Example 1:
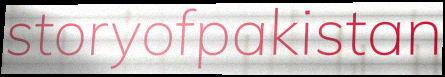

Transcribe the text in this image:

storyofpakistan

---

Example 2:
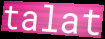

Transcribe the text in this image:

talat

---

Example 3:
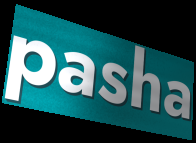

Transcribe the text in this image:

pasha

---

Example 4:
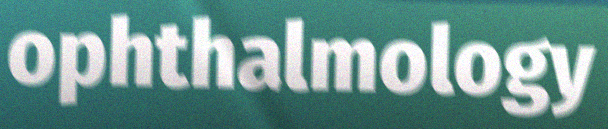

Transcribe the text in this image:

ophthalmology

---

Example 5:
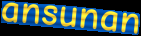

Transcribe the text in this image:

ansunan